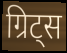
ग्रिट्स